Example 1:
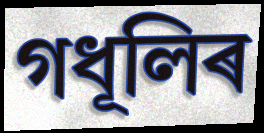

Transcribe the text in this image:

গধূলিৰ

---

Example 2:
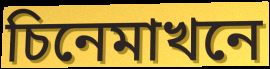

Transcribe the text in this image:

চিনেমাখনে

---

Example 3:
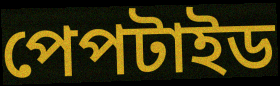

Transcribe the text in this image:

পেপটাইড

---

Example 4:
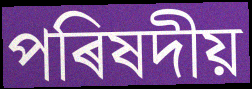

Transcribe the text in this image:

পৰিষদীয়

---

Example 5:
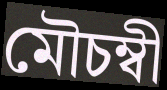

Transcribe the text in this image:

মৌচম্বী